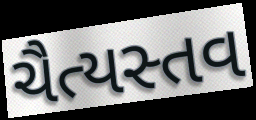
ચૈત્યસ્તવ